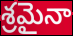
శ్రమైనా